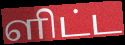
ளிட்ட